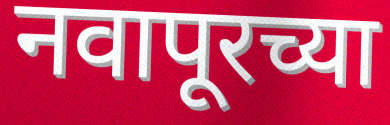
नवापूरच्या